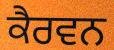
ਕੈਰਵਨ